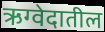
ऋग्वेदातील